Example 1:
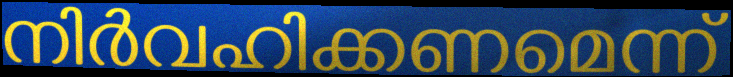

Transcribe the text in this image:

നിർവഹിക്കണമെന്ന്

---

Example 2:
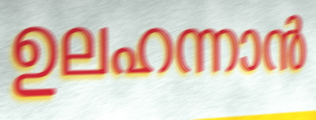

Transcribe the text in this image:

ഉലഹന്നാൻ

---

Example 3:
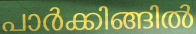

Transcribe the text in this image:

പാർക്കിങ്ങിൽ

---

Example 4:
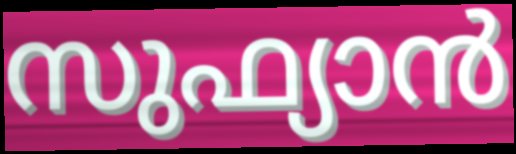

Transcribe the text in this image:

സുഫ്യാൻ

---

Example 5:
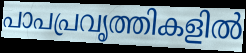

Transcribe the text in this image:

പാപപ്രവൃത്തികളിൽ